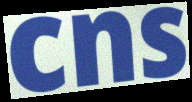
cns